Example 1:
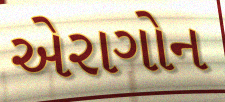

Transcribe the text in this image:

એરાગોન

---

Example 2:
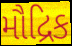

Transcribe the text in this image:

મૌદ્રિક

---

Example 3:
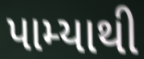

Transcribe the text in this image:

પામ્યાથી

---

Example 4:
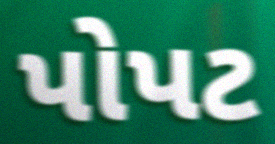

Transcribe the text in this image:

પોપટ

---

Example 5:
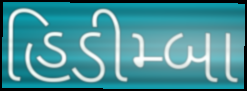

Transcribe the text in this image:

હિડીમ્બા